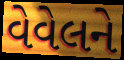
વેવેલને